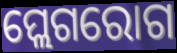
ପ୍ଲେଗରୋଗ